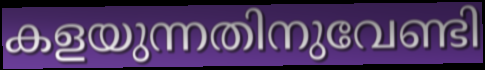
കളയുന്നതിനുവേണ്ടി